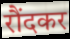
रौंदकर